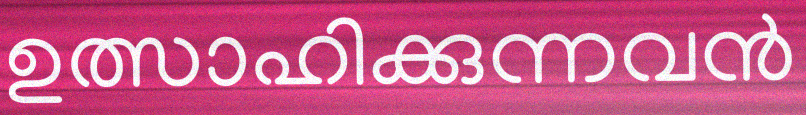
ഉത്സാഹിക്കുന്നവൻ